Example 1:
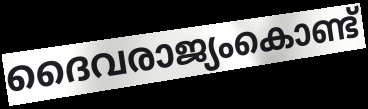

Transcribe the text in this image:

ദൈവരാജ്യംകൊണ്ട്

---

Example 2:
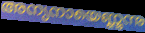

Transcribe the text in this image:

അന്യനായെണ്ണുന്നു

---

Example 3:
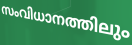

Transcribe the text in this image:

സംവിധാനത്തിലും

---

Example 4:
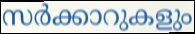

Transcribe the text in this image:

സർക്കാറുകളും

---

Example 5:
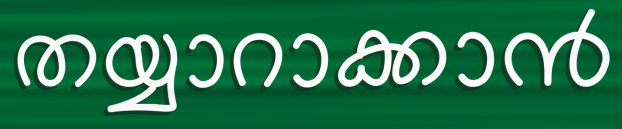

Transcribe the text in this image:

തയ്യാറാക്കാൻ